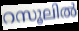
റസൂലിൽ